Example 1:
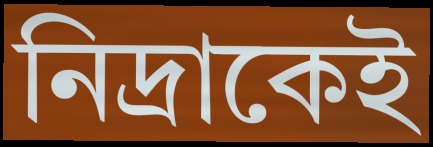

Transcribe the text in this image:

নিদ্রাকেই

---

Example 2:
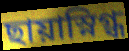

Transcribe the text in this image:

ছায়াস্নিগ্ধ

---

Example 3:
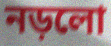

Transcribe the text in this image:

নড়লো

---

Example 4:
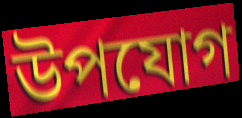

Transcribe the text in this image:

উপযোগ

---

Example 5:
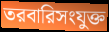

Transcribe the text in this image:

তরবারিসংযুক্ত